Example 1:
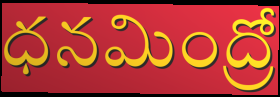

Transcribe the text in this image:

ధనమింద్రో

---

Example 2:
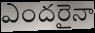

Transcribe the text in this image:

ఎందరైనా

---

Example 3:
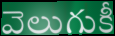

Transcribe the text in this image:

వెలుగుకీ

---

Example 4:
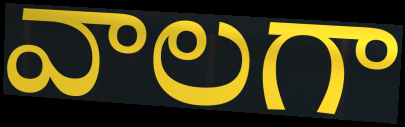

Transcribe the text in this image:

వాలగా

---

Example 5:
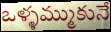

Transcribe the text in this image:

ఒళ్ళమ్ముకునే